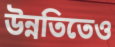
উন্নতিতেও